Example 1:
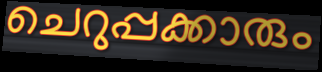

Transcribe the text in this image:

ചെറുപ്പക്കാരും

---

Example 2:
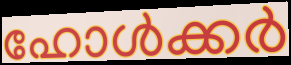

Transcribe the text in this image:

ഹോൾക്കർ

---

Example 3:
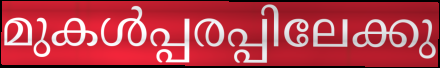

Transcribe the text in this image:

മുകൾപ്പരപ്പിലേക്കു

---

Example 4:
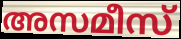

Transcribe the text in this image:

അസമീസ്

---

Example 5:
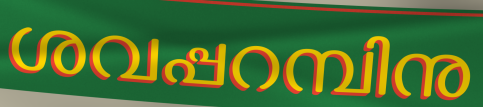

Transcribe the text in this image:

ശവപ്പറമ്പിനു